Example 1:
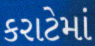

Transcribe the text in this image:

કરાટેમાં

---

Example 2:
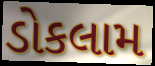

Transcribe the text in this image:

ડોકલામ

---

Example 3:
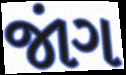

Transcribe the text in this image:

જાંગ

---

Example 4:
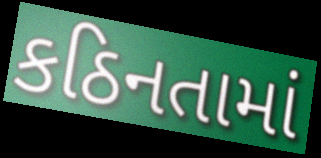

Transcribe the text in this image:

કઠિનતામાં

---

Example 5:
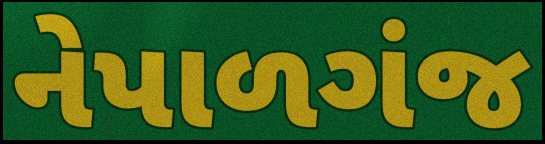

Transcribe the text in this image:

નેપાળગંજ